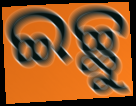
ଇଚ୍ଛୁ